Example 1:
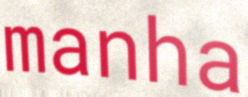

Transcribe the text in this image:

manha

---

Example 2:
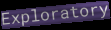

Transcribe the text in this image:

Exploratory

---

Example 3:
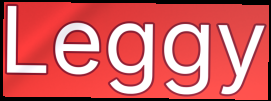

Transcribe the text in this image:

Leggy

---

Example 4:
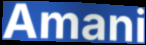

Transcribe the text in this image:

Amani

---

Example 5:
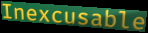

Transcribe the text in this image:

Inexcusable